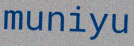
muniyu